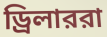
ড্রিলাররা